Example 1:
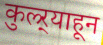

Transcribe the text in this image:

कुल्र्याहून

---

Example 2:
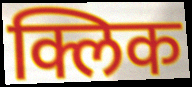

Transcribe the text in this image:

क्लिक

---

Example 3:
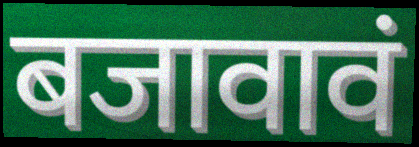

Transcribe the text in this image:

बजावावं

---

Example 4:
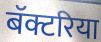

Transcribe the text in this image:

बॅक्टरिया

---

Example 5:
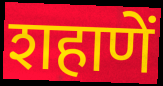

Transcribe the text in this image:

शहाणें